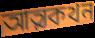
আত্মকথন